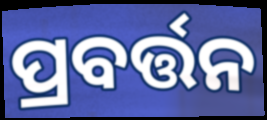
ପ୍ରବର୍ତ୍ତନ